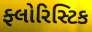
ફ્લોરિસ્ટિક